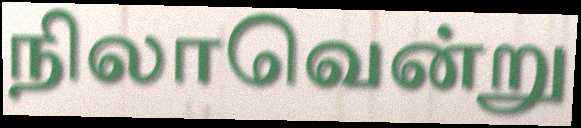
நிலாவென்று